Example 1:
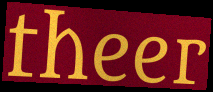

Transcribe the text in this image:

theer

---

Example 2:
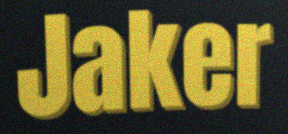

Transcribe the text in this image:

Jaker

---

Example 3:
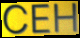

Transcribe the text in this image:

CEH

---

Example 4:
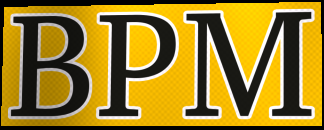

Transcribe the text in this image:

BPM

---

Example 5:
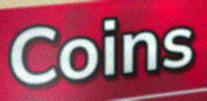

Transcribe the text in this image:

Coins